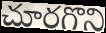
చూరగొని